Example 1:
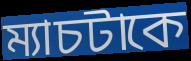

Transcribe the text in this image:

ম্যাচটাকে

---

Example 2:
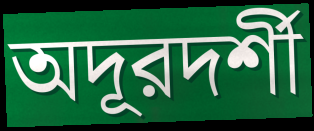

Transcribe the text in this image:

অদূরদর্শী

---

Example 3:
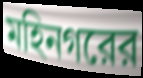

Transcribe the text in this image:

মহিনগরের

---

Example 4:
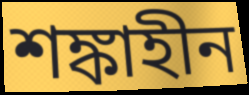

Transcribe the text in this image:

শঙ্কাহীন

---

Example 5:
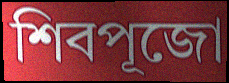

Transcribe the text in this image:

শিবপূজো